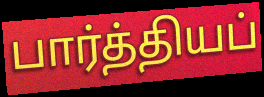
பார்த்தியப்